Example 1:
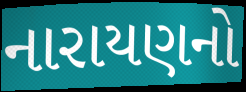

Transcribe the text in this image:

નારાયણનો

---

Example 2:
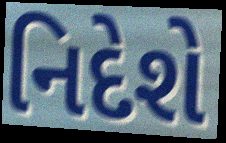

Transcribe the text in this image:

નિદેશે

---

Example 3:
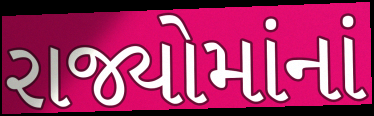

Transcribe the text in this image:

રાજ્યોમાંનાં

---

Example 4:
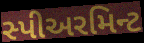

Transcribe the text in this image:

સ્પીઅરમિન્ટ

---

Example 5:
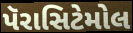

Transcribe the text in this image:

પૅરાસિટેમોલ